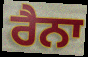
ਰੈਨਾ